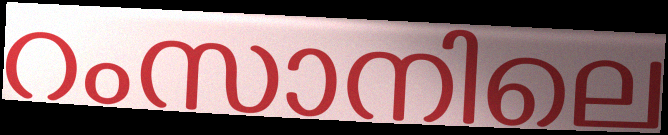
റംസാനിലെ